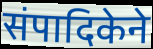
संपादिकेने